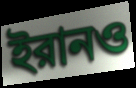
ইরানও